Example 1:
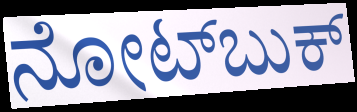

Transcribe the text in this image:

ನೋಟ್‌ಬುಕ್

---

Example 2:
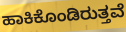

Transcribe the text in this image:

ಹಾಕಿಕೊಂಡಿರುತ್ತವೆ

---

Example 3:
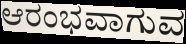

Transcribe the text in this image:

ಆರಂಭವಾಗುವ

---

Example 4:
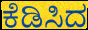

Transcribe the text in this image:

ಕೆಡಿಸಿದ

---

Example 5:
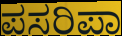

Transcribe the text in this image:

ಪಸರಿಪಾ